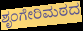
ಶೃಂಗೇರಿಮಠದ